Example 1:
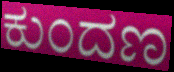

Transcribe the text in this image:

ಕುಂದಣ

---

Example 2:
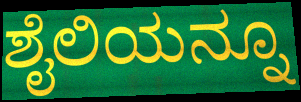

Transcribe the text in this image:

ಶೈಲಿಯನ್ನೂ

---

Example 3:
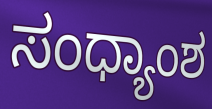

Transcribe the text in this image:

ಸಂಧ್ಯಾಂಶ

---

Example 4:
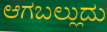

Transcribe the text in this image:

ಆಗಬಲ್ಲುದು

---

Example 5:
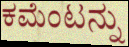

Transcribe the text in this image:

ಕಮೆಂಟನ್ನು